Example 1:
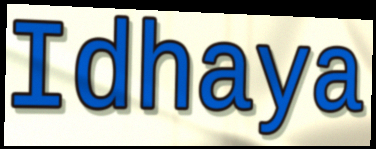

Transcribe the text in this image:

Idhaya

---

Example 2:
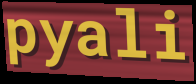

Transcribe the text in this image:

pyali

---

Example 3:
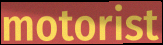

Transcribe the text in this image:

motorist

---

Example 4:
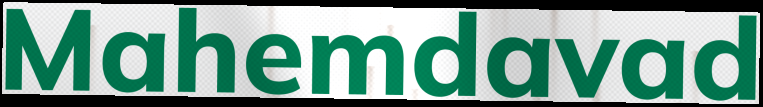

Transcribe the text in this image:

Mahemdavad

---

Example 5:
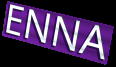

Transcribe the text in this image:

ENNA